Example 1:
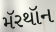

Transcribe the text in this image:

મૅરથૉન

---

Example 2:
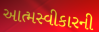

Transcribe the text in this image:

આત્મસ્વીકારની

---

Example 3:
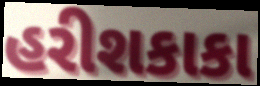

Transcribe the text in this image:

હરીશકાકા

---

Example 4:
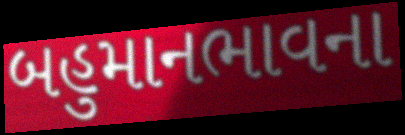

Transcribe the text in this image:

બહુમાનભાવના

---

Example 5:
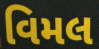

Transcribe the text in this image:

વિમલ